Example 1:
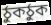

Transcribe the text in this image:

ঠুকঠুক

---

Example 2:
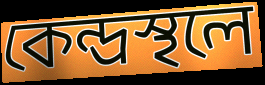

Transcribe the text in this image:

কেন্দ্রস্থলে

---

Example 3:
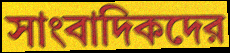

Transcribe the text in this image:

সাংবাদিকদের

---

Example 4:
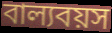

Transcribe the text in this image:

বাল্যবয়স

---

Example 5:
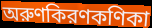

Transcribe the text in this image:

অরুণকিরণকণিকা